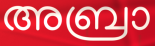
അബ്രാ